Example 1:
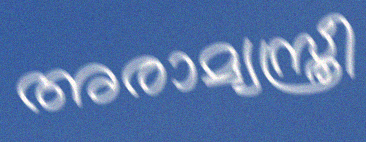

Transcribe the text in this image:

അരാമ്യസ്ത്രീ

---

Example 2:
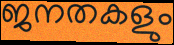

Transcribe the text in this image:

ജനതകളും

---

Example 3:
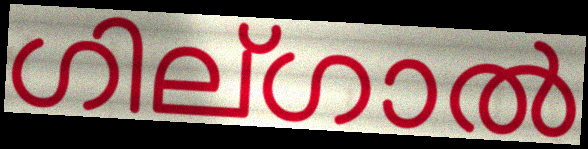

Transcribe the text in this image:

ഗില്ഗാൽ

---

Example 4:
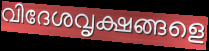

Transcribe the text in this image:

വിദേശവൃക്ഷങ്ങളെ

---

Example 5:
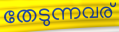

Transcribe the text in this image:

തേടുന്നവര്